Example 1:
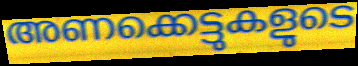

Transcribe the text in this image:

അണക്കെട്ടുകളുടെ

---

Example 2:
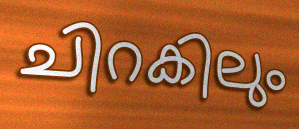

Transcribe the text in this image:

ചിറകിലും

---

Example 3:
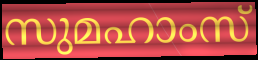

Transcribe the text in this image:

സുമഹാംസ്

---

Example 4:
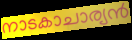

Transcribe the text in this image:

നാടകാചാര്യൻ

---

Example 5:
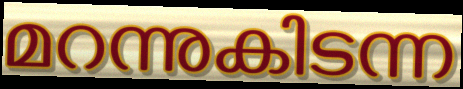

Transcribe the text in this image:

മറന്നുകിടന്ന